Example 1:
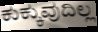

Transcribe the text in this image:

ಕುಕ್ಕುವುದಿಲ್ಲ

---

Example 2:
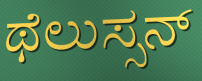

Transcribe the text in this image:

ಥೆಲುಸ್ಸನ್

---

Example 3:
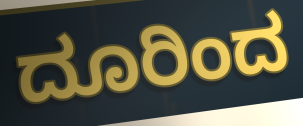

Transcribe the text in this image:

ದೂರಿಂದ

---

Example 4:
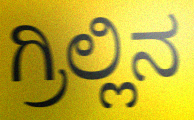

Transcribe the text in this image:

ಗ್ರಿಲ್ಲಿನ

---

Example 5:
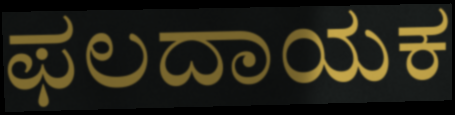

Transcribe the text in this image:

ಫಲದಾಯಕ